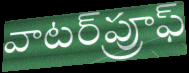
వాటర్‌ప్రూఫ్